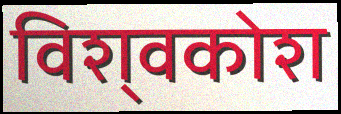
विश्वकोश